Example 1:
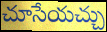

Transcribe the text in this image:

చూసేయచ్చు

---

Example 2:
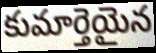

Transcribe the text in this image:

కుమార్తెయైన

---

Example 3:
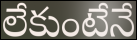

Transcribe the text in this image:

లేకుంటేనే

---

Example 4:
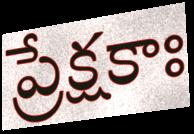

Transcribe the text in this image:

ప్రేక్షకాః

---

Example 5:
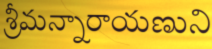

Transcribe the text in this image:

శ్రీమన్నారాయణుని